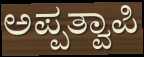
ಅಪ್ಪತ್ವಾಪಿ